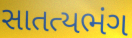
સાતત્યભંગ